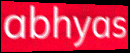
abhyas